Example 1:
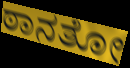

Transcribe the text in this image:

ಠಾನತೋ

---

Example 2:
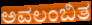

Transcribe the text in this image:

ಅವಲಂಬಿತ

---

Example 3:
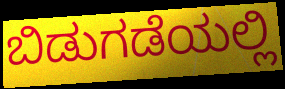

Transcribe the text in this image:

ಬಿಡುಗಡೆಯಲ್ಲಿ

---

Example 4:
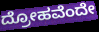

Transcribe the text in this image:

ದ್ರೋಹವೆಂದೇ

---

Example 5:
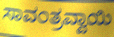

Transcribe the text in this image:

ಸಾವಂತ್ರವ್ವಾಯಿ